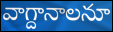
వాగ్దానాలనూ